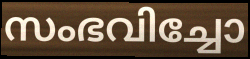
സംഭവിച്ചോ